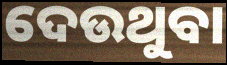
ଦେଉଥୁବା